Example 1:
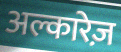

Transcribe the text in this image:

अल्कारेज़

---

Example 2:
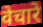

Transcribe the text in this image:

वेचारे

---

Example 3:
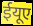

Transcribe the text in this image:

ईयूए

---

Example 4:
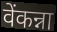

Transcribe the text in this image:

वेंकन्ना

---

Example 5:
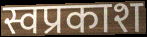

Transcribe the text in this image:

स्वप्रकाश